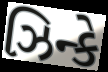
ઝિન્કે